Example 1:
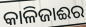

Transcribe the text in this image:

କାଳିଜାଈର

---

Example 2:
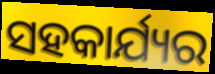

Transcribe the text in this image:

ସହକାର୍ଯ୍ୟର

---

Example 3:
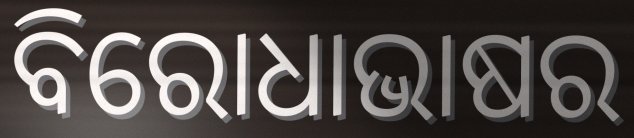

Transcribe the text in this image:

ବିରୋଧାଭାଷର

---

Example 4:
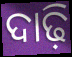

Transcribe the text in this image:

ଦାଢ଼ି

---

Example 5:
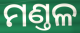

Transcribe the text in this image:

ମଣ୍ତଳ